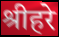
श्रीहरे